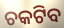
ଚକଟିବ